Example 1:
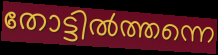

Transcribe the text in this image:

തോട്ടിൽത്തന്നെ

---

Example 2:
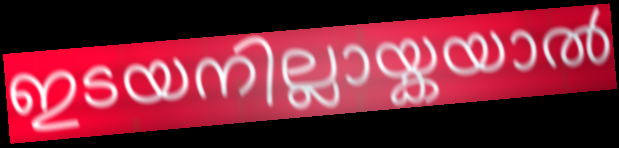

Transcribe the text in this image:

ഇടയനില്ലായ്കയാൽ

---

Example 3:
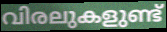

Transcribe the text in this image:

വിരലുകളുണ്ട്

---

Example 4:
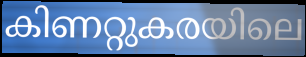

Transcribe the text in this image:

കിണറ്റുകരയിലെ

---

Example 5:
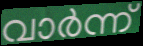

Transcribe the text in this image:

വാർന്ന്